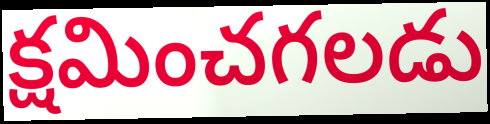
క్షమించగలడు